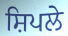
ਸ਼ਿਪਲੇ